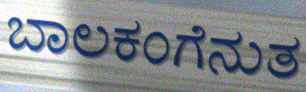
ಬಾಲಕಂಗೆನುತ